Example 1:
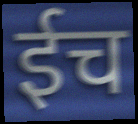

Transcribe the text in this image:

ईच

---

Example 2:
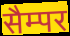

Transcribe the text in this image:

सैम्पर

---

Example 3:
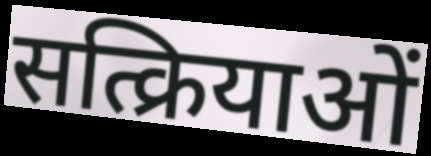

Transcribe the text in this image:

सत्क्रियाओं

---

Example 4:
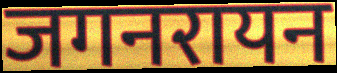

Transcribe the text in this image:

जगनरायन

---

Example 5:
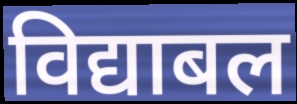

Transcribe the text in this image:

विद्याबल